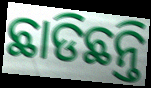
ଛାଡିଛନ୍ତି